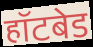
हॉटबेड